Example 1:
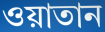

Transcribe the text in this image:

ওয়াতান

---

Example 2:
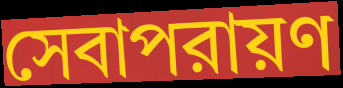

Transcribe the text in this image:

সেবাপরায়ণ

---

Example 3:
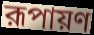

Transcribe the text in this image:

রূপায়ণ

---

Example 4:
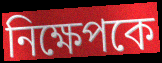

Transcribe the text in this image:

নিক্ষেপকে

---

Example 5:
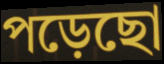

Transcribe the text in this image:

পড়েছো